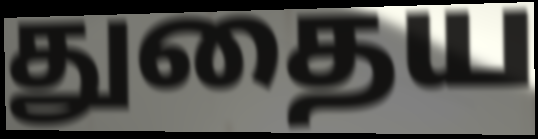
துதைய